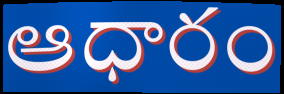
ఆధారం